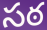
సఠ